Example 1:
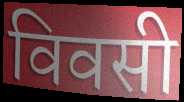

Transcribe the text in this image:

विवसी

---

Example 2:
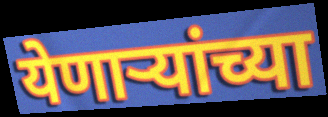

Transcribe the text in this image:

येणाऱ्यांच्या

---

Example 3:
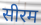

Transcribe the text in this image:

सीरम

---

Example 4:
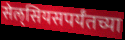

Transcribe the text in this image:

सेल्सियसपर्यंतच्या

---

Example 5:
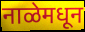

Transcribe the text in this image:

नाळेमधून